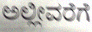
ಅಲ್ಲೀವರೆಗೆ